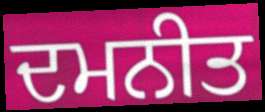
ਦਮਨੀਤ